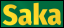
Saka